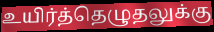
உயிர்த்தெழுதலுக்கு